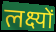
लक्ष्यों